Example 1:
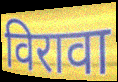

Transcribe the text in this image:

विरावा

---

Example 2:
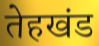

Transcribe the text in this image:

तेहखंड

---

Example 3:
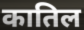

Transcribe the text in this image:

कातिल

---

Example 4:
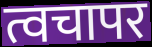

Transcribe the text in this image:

त्वचापर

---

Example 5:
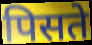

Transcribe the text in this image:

पिसते